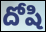
దోషి